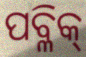
ପବ୍ଳିକ୍